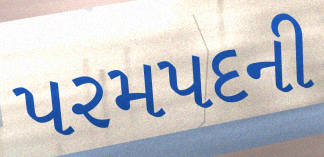
પરમપદની